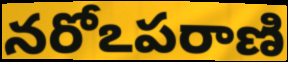
నరోఽపరాణి